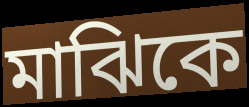
মাঝিকে